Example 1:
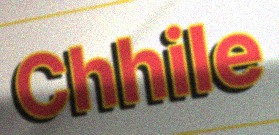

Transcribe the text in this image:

Chhile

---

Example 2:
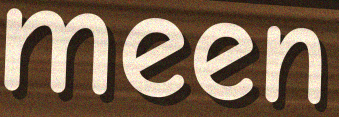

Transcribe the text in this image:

meen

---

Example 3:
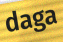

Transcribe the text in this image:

daga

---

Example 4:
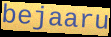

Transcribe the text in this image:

bejaaru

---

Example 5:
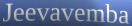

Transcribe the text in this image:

Jeevavemba